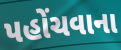
પહોંચવાના